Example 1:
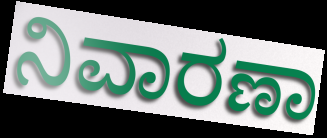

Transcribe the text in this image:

ನಿವಾರಣಾ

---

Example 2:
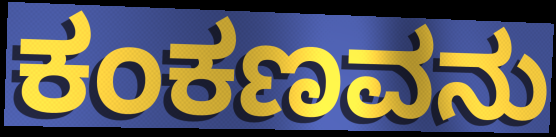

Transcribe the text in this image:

ಕಂಕಣವನು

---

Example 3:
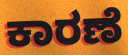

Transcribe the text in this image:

ಕಾರಣೆ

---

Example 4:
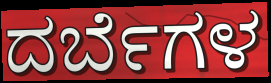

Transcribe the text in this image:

ದರ್ಬೆಗಳ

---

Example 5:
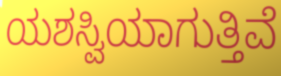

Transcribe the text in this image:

ಯಶಸ್ವಿಯಾಗುತ್ತಿವೆ